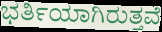
ಭರ್ತಿಯಾಗಿರುತ್ತವೆ